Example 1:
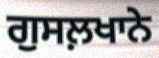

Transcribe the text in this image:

ਗੁਸਲ਼ਖਾਨੇ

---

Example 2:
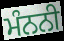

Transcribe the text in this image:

ਮੰਨਨੀ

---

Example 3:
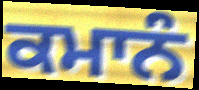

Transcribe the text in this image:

ਕਮਾਨੰ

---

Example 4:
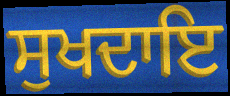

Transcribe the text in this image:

ਸੁਖਦਾਇ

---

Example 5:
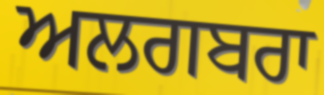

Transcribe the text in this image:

ਅਲਗਬਰਾ